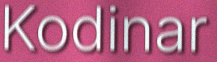
Kodinar